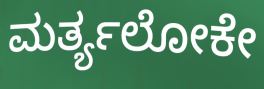
ಮರ್ತ್ಯಲೋಕೇ